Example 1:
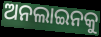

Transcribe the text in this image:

ଅନଲାଇନକୁ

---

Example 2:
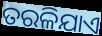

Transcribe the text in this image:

ତରଳିଯାଏ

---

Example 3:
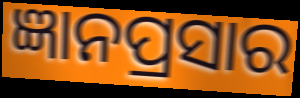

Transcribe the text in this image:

ଜ୍ଞାନପ୍ରସାର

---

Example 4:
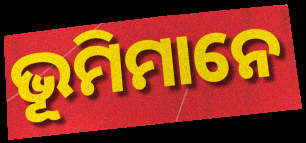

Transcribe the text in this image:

ଭୂମିମାନେ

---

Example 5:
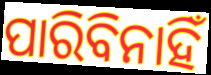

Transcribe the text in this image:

ପାରିବିନାହିଁ